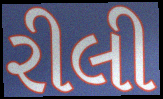
રીલી